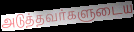
அடுத்தவர்களுடைய